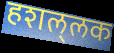
हशल्लक